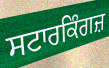
ਸਟਾਰਕਿੰਗਜ਼